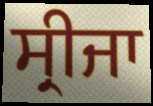
ਸ੍ਰੀਜਾ